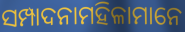
ସମ୍ପାଦନାମହିଳାମାନେ